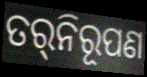
ତର୍‌ନିରୂପଣ